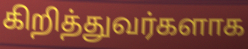
கிறித்துவர்களாக